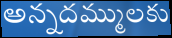
అన్నదమ్ములకు